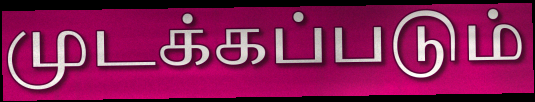
முடக்கப்படும்